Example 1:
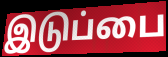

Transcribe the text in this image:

இடுப்பை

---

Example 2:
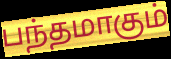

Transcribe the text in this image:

பந்தமாகும்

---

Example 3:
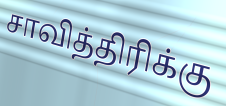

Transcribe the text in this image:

சாவித்திரிக்கு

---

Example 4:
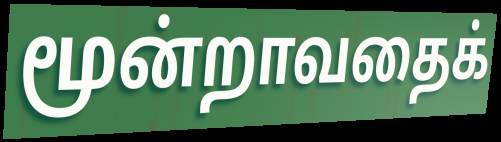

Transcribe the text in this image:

மூன்றாவதைக்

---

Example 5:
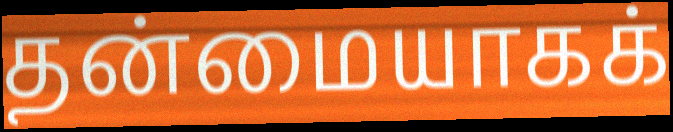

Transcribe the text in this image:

தன்மையாகக்